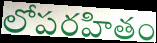
లోపరహితం